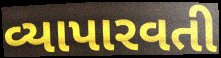
વ્યાપારવતી